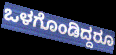
ಒಳಗೊಂಡಿದ್ದರೂ